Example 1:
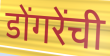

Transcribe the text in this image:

डोंगरेंची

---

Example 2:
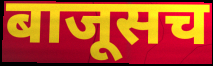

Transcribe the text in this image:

बाजूसच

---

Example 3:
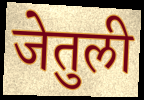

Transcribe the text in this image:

जेतुली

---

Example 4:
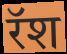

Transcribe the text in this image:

रॅश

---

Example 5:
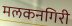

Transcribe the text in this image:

मलकनगिरी